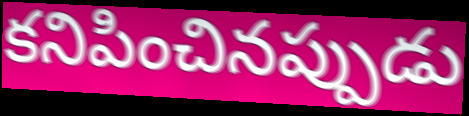
కనిపించినప్పుడు